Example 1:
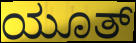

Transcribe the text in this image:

ಯೂತ್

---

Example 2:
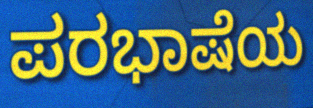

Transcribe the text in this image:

ಪರಭಾಷೆಯ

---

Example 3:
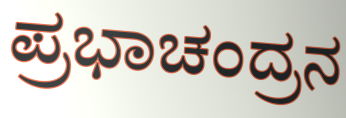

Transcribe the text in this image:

ಪ್ರಭಾಚಂದ್ರನ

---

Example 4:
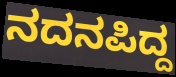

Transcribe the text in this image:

ನದನಪಿದ್ದ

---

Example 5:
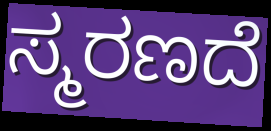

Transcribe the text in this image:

ಸ್ಮರಣದೆ